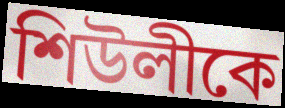
শিউলীকে